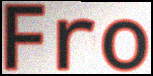
Fro